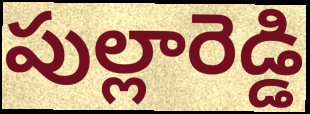
పుల్లారెడ్డి